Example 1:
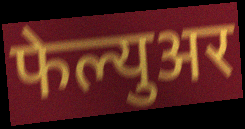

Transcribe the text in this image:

फेल्युअर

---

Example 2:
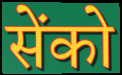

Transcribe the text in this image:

सेंको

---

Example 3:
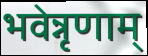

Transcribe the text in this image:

भवेन्नृणाम्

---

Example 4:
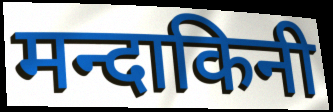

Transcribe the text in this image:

मन्दाकिनी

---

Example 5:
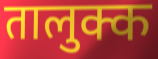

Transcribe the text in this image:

तालुक्क